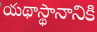
యథాస్థానానికి